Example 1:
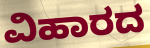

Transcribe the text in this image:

ವಿಹಾರದ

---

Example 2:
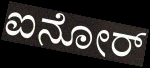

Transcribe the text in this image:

ಐನೋರ್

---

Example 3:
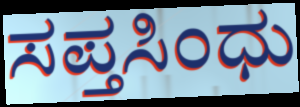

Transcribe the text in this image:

ಸಪ್ತಸಿಂಧು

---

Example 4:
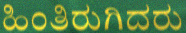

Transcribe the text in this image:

ಹಿಂತಿರುಗಿದರು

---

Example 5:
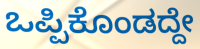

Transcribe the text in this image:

ಒಪ್ಪಿಕೊಂಡದ್ದೇ